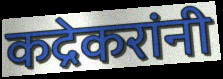
कद्रेकरांनी